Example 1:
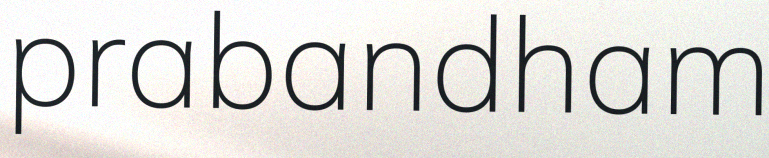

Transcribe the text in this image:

prabandham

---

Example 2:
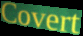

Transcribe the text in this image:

Covert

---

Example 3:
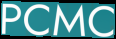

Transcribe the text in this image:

PCMC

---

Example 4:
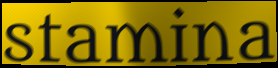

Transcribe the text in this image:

stamina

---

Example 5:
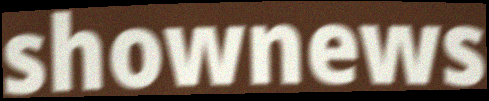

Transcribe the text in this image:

shownews